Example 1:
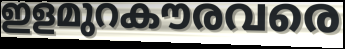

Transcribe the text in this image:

ഇളമുറകൗരവരെ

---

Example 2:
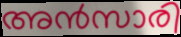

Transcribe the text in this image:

അൻസാരി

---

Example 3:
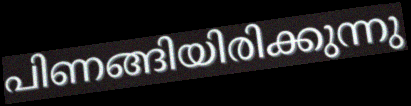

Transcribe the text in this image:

പിണങ്ങിയിരിക്കുന്നു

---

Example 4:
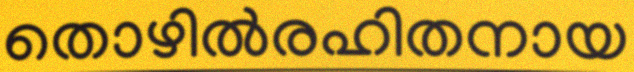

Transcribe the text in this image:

തൊഴിൽരഹിതനായ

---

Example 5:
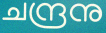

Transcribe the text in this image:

ചന്ദ്രനു